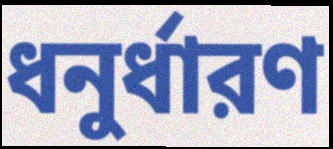
ধনুর্ধারণ